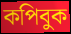
কপিবুক